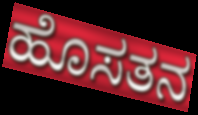
ಹೊಸತನ